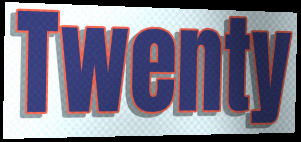
Twenty